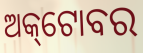
ଅକ୍‌ଟୋବର